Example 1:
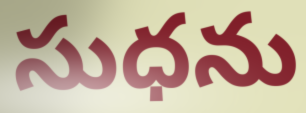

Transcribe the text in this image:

సుధను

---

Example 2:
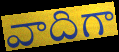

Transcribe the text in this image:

వాదిగా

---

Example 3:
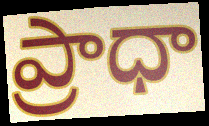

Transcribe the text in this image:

ప్రాధా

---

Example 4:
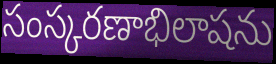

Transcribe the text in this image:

సంస్కరణాభిలాషను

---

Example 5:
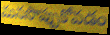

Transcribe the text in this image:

మనసొప్పుకోవడం